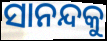
ସାନନ୍ଦକୁ